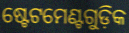
ଷ୍ଟେଟମେଣ୍ଟଗୁଡ଼ିକ